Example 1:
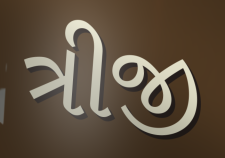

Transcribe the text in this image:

ત્રીજી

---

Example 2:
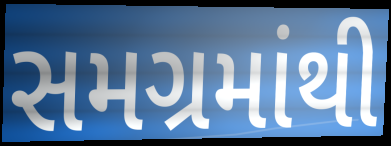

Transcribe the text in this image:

સમગ્રમાંથી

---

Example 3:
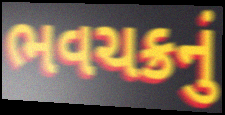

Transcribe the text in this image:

ભવચક્રનું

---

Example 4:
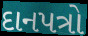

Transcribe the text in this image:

દાનપત્રો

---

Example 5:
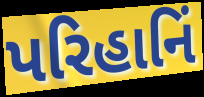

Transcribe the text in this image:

પરિહાનિં